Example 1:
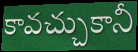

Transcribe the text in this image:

కావచ్చుకానీ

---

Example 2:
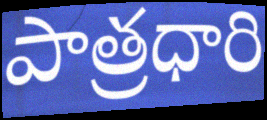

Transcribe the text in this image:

పాత్రధారి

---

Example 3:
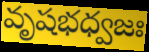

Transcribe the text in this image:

వృషభధ్వజః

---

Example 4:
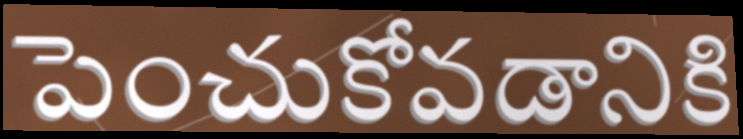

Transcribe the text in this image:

పెంచుకోవడానికి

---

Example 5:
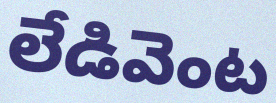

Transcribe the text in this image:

లేడివెంట